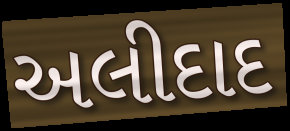
અલીદાદ